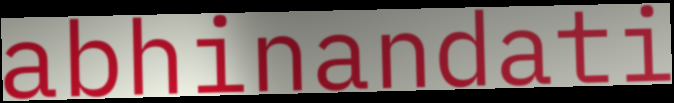
abhinandati